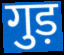
गुड़